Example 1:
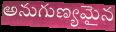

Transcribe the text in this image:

అనుగుణ్యమైన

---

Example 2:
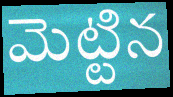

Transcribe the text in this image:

మెట్టిన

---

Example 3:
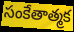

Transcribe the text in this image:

సంకేతాత్మక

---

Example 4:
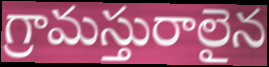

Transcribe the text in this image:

గ్రామస్తురాలైన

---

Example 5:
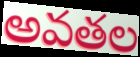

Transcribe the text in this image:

అవతల